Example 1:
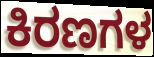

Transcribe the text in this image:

ಕಿರಣಗಳ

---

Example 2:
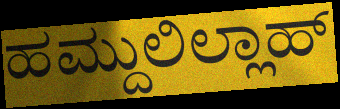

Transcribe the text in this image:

ಹಮ್ದುಲಿಲ್ಲಾಹ್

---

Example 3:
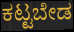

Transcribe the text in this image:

ಕಟ್ಟಬೇಡ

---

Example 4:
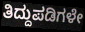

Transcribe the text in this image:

ತಿದ್ದುಪಡಿಗಳೇ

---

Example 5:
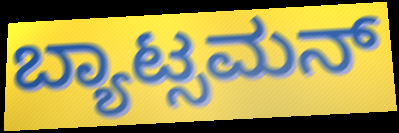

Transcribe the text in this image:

ಬ್ಯಾಟ್ಸಮನ್